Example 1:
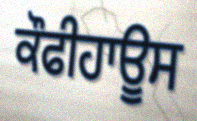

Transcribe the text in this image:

ਕੌਫੀਹਾਊਸ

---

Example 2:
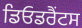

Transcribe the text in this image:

ਡਿਓਡਰੈਂਟਸ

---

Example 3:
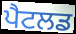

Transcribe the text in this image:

ਪੈਟਲਡ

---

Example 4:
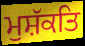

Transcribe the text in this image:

ਮੁਸ਼ੱਕਤਿ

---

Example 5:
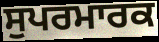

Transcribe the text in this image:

ਸੁਪਰਮਾਰਕ